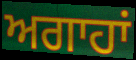
ਅਗਾਹਾਂ